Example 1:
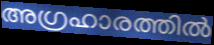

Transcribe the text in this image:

അഗ്രഹാരത്തിൽ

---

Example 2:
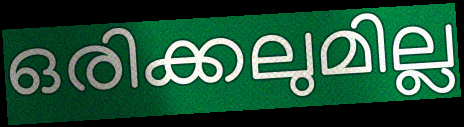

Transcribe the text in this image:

ഒരിക്കലുമില്ല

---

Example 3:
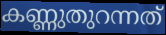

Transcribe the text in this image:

കണ്ണുതുറന്നത്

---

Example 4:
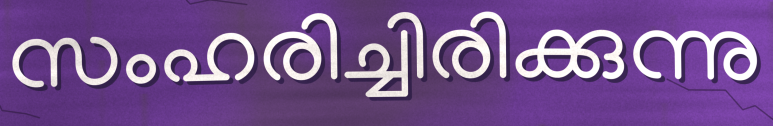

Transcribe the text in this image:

സംഹരിച്ചിരിക്കുന്നു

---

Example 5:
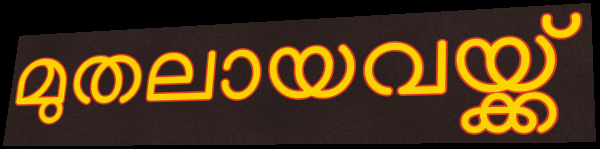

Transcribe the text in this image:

മുതലായവയ്ക്ക്